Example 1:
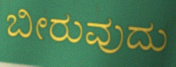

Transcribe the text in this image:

ಬೀರುವುದು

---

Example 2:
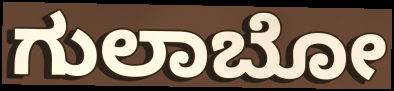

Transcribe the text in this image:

ಗುಲಾಬೋ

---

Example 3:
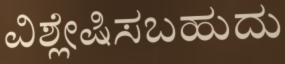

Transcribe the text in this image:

ವಿಶ್ಲೇಷಿಸಬಹುದು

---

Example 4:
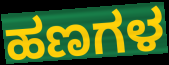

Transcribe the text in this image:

ಹಣಗಳ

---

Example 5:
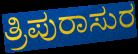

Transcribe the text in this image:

ತ್ರಿಪುರಾಸುರ